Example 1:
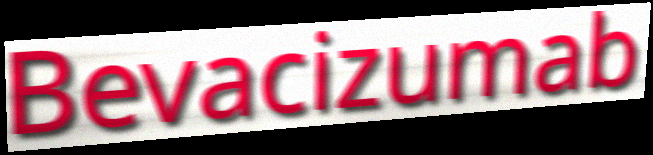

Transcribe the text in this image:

Bevacizumab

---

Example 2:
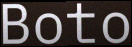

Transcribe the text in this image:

Boto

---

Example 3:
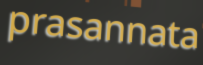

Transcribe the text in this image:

prasannata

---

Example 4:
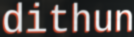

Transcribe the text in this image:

dithun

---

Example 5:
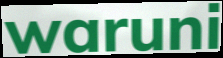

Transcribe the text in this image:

waruni